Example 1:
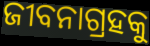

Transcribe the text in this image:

ଜୀବନାଗ୍ରହକୁ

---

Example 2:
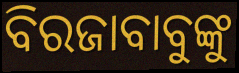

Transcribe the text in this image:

ବିରଜାବାବୁଙ୍କୁ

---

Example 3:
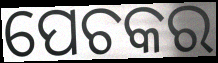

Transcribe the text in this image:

ପେଚକର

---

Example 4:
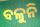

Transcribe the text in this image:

ବଳୁନି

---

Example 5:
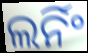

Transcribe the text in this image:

ଲର୍ନିଂ